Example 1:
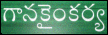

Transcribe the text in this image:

గానకైంకర్య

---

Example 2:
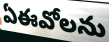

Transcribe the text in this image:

ఏఈవోలను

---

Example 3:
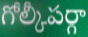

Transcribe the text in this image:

గోల్కీపర్గా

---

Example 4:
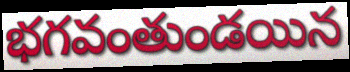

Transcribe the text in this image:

భగవంతుండయిన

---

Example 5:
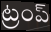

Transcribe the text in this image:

ట్రంప్